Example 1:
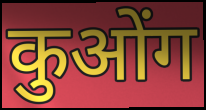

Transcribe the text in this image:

कुओंग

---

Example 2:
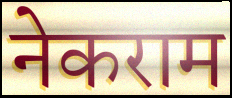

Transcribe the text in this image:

नेकराम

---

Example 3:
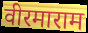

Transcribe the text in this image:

वीरमाराम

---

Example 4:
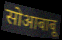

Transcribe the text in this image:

सोआबाबू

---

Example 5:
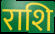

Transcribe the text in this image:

राशि